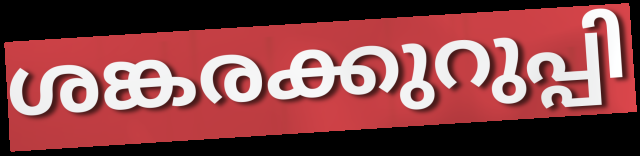
ശങ്കരക്കുറുപ്പി